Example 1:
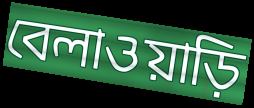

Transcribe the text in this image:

বেলাওয়াড়ি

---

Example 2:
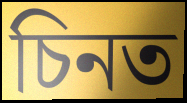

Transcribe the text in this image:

চিনত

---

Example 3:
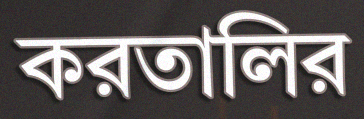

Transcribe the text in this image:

করতালির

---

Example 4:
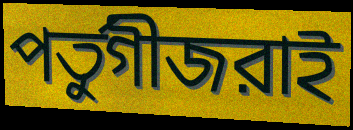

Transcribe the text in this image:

পর্তুগীজরাই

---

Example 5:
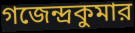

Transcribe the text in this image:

গজেন্দ্রকুমার